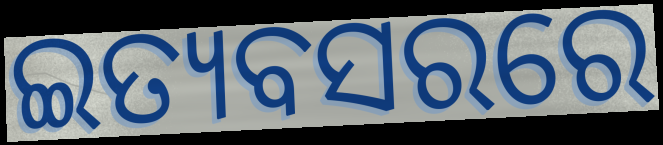
ଇତ୍ୟବସରରେ